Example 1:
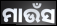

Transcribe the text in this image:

ମାଉଁସ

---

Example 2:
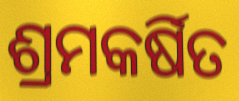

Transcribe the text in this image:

ଶ୍ରମକର୍ଷିତ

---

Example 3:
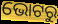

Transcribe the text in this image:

ଭୋଟରୁ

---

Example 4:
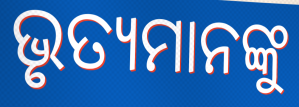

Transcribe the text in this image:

ଭୃତ୍ୟମାନଙ୍କୁ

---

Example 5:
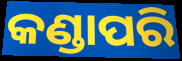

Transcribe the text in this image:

କଣ୍ଡାପରି